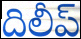
దిలీప్